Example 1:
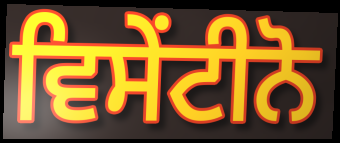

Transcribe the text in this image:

ਵਿਸੇਂਟੀਨੋ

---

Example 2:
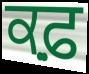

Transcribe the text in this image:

ਕ਼ਫ਼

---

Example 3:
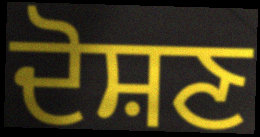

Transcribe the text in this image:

ਦੋਸ਼ਣ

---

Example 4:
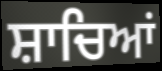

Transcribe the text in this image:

ਸ਼ਾਚਿਆਂ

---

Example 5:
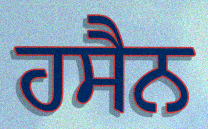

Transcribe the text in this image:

ਹਸੈਨ